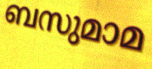
ബസുമാമ